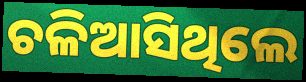
ଚଳିଆସିଥିଲେ